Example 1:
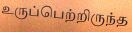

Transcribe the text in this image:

உருப்பெற்றிருந்த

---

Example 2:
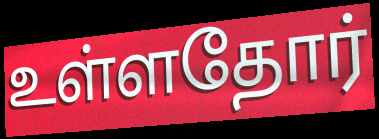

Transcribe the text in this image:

உள்ளதோர்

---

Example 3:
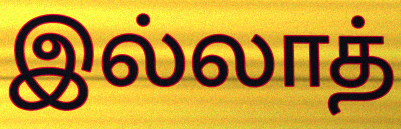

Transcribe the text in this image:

இல்லாத்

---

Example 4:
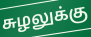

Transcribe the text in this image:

சுழலுக்கு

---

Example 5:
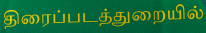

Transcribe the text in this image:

திரைப்படத்துறையில்